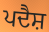
ਪਦੈਸ਼